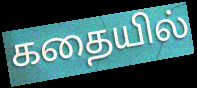
கதையில்